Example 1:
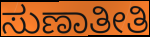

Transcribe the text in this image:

ಸುಣಾತೀತಿ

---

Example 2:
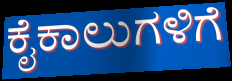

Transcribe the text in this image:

ಕೈಕಾಲುಗಳಿಗೆ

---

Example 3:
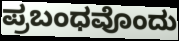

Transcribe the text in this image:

ಪ್ರಬಂಧವೊಂದು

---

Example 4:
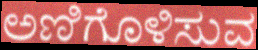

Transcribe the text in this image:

ಅಣಿಗೊಳಿಸುವ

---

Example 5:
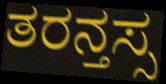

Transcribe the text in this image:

ತರನ್ತಸ್ಸ